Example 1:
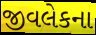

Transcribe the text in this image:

જીવલેકના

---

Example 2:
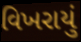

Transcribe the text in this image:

વિખરાયું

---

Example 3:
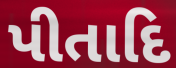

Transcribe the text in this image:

પીતાદિ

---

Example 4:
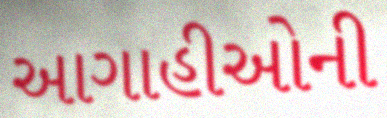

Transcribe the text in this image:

આગાહીઓની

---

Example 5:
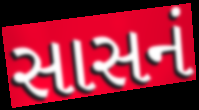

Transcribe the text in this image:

સાસનં